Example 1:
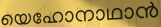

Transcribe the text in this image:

യെഹോനാഥാൻ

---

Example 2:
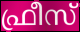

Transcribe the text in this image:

ഫ്രീസ്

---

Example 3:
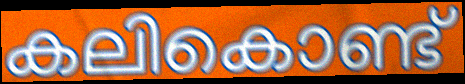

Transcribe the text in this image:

കലികൊണ്ട്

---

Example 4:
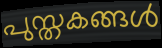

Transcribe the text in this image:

പുസ്തകങ്ങൾ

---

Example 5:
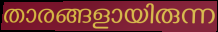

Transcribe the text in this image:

താരങ്ങളായിരുന്ന